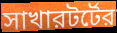
সাখারটর্টের